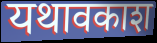
यथावकाश